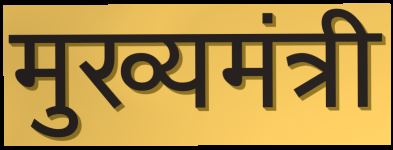
मुख्यमंत्री